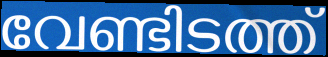
വേണ്ടിടത്ത്